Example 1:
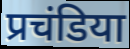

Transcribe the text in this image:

प्रचंडिया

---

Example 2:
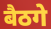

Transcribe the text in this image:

बैठगे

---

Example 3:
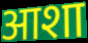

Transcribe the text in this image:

आशा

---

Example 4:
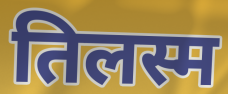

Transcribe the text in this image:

तिलस्म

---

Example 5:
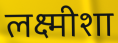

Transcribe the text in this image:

लक्ष्मीशा